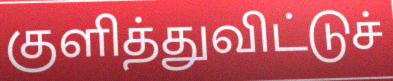
குளித்துவிட்டுச்